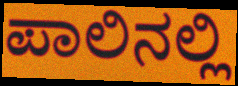
ಪಾಲಿನಲ್ಲಿ